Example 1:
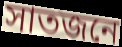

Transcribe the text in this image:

সাতজনে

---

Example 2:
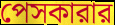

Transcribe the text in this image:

পেসকারার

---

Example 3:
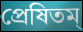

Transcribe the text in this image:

প্রেষিতম্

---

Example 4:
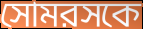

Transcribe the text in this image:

সোমরসকে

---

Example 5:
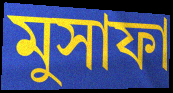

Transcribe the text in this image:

মুসাফা